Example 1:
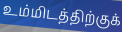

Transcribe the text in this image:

உம்மிடத்திற்குக்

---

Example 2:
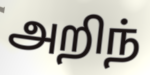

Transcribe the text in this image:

அறிந்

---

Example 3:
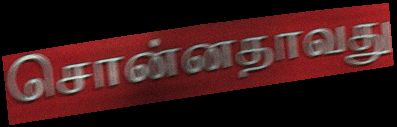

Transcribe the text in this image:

சொன்னதாவது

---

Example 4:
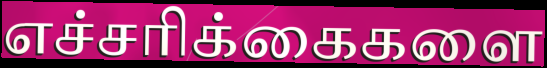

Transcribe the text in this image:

எச்சரிக்கைகளை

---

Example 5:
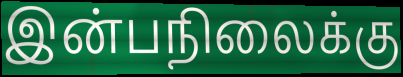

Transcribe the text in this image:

இன்பநிலைக்கு